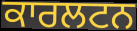
ਕਾਰਲਟਨ